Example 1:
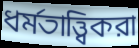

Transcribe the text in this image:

ধর্মতাত্ত্বিকরা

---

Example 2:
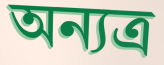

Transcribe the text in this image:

অন্যত্র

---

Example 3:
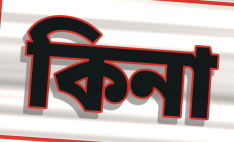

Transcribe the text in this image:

কিনা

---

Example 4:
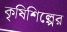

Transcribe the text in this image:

কৃষিশিল্পের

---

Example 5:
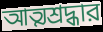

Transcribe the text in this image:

আত্মশ্রদ্ধার